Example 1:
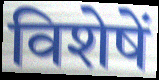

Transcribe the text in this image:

विशेषें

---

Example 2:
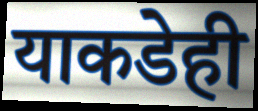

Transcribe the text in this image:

याकडेही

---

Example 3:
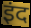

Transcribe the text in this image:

इंद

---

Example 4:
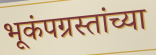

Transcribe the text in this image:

भूकंपग्रस्तांच्या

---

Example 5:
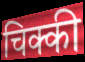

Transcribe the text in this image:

चिक्की